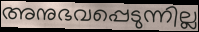
അനുഭവപ്പെടുന്നില്ല